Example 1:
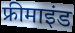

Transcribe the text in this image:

फ्रीमाइंड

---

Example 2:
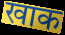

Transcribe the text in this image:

खाक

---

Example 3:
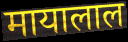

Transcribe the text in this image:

मायालाल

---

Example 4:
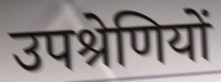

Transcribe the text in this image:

उपश्रेणियों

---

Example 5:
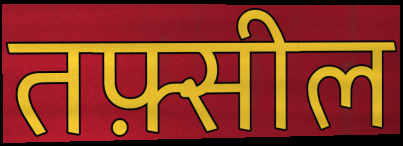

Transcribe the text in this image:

तफ़्सील